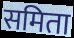
समिता